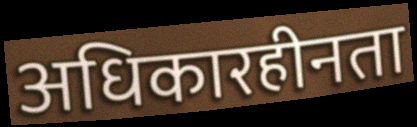
अधिकारहीनता